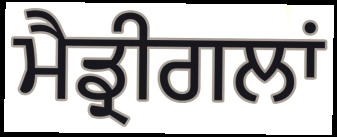
ਮੈਡ੍ਰੀਗਲਾਂ